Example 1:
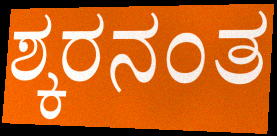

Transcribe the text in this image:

ಶ್ಕರನಂತ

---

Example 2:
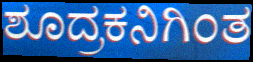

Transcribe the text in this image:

ಶೂದ್ರಕನಿಗಿಂತ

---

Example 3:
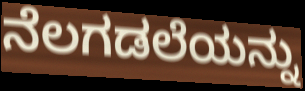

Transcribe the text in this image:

ನೆಲಗಡಲೆಯನ್ನು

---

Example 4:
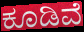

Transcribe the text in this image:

ಕೂಡಿವೆ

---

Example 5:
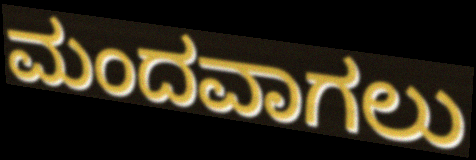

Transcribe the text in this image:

ಮಂದವಾಗಲು